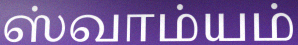
ஸ்வாம்யம்